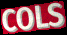
COLS